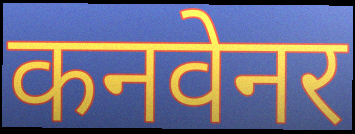
कनवेनर